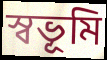
স্বভূমি